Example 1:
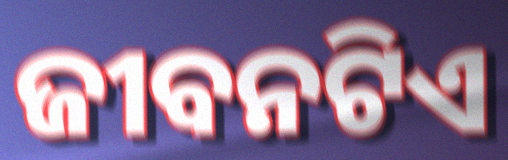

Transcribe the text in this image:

ଜୀବନଟିଏ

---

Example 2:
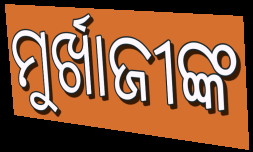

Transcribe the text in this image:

ମୁର୍ଖାଜୀଙ୍କ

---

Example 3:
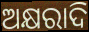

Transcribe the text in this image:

ଅକ୍ଷରାଦି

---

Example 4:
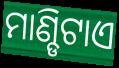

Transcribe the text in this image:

ମାଣ୍ଡିଟାଏ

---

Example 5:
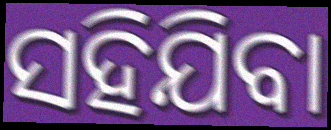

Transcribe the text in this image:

ସହିଯିବା